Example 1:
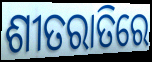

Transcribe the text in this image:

ଶୀତରାତିରେ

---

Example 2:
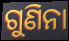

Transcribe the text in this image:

ଗୁଣିନା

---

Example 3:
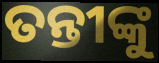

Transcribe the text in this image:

ତନ୍ତୀଙ୍କୁ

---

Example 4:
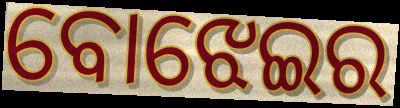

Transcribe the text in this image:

ବୋଝେଇର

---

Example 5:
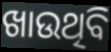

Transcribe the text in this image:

ଖାଉଥିବି